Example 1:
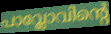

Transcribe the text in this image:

പാവ്ലോവിന്റെ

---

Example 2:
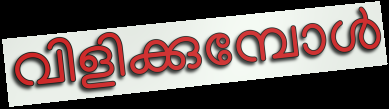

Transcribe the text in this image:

വിളിക്കുമ്പോൾ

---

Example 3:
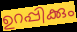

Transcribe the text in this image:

ഉറപ്പിക്കും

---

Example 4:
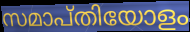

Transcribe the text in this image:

സമാപ്തിയോളം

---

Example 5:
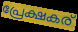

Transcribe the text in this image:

പ്രേക്ഷകര്